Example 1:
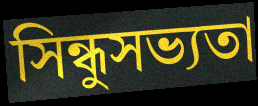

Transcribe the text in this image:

সিন্ধুসভ্যতা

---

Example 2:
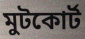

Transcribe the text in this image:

মুটকোর্ট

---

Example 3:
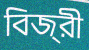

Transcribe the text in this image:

বিজ্‌রী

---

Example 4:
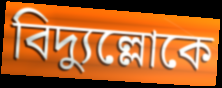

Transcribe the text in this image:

বিদ্যুল্লোকে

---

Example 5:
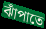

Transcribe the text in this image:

ঝাঁপাতে